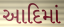
આદિમાં